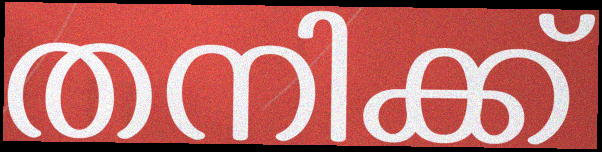
തനിക്ക്